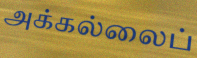
அக்கல்லைப்